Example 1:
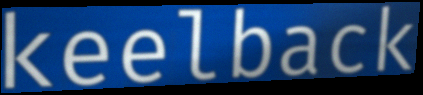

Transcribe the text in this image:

keelback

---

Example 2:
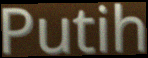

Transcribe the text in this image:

Putih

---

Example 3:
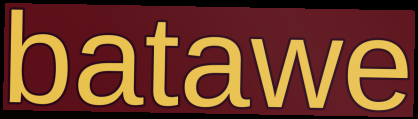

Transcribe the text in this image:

batawe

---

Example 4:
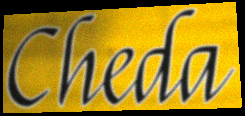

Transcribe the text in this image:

Cheda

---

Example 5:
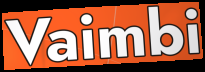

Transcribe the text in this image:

Vaimbi